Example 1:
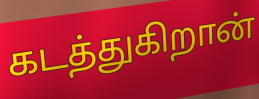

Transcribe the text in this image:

கடத்துகிறான்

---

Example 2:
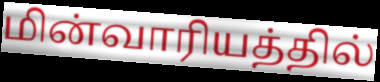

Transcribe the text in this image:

மின்வாரியத்தில்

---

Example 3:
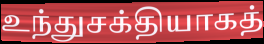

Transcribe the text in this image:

உந்துசக்தியாகத்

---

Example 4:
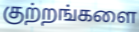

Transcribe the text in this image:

குற்றங்களை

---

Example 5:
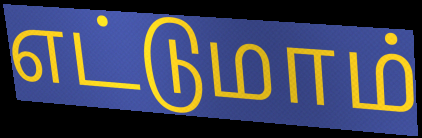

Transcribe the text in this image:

எட்டுமாம்